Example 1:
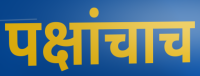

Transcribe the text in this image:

पक्षांचाच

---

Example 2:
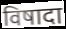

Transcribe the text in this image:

विषादा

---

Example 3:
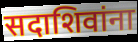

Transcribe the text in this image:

सदाशिवांना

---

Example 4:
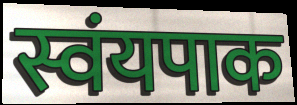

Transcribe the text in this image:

स्वंयपाक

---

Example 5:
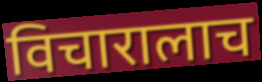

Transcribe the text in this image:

विचारालाच